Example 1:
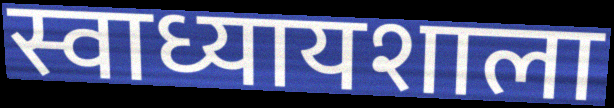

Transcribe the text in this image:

स्वाध्यायशाला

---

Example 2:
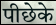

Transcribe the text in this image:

पीछेके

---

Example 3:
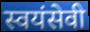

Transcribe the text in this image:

स्वयंसेवी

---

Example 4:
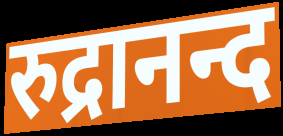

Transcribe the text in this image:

रुद्रानन्द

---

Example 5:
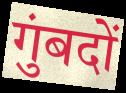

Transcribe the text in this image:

गुंबदों